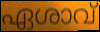
ഏശാവ്